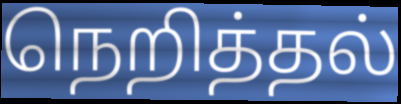
நெறித்தல்